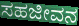
ಸಹಜೀವನ